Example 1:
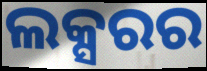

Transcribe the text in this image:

ଲକ୍ସରର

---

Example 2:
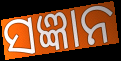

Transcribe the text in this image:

ସଜ୍ଞାନ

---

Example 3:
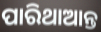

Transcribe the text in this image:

ପାରିଥାଆନ୍ତ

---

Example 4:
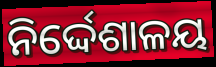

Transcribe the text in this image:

ନିର୍ଦ୍ଦେଶାଳୟ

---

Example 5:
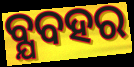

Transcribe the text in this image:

ବ୍ଯବହର